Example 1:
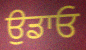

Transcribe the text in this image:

ਉਡਾਓ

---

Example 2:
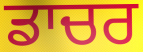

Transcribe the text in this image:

ਡਾਚਰ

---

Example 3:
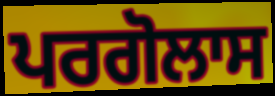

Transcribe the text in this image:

ਪਰਗੋਲਾਸ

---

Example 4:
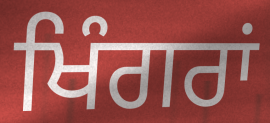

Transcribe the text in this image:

ਖਿੰਗਰਾਂ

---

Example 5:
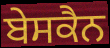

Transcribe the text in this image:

ਬੇਸਕੈਨ